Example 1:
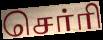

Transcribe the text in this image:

செர்ரி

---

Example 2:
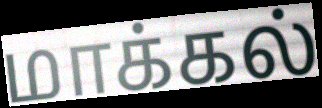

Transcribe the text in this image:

மாக்கல்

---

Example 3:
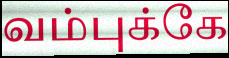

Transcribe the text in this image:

வம்புக்கே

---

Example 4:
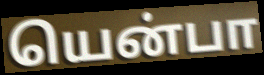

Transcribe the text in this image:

யென்பா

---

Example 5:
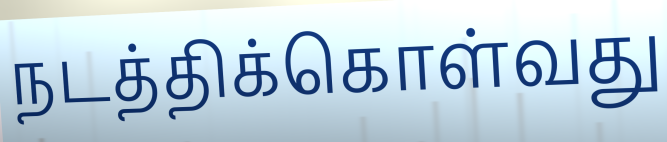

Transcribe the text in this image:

நடத்திக்கொள்வது